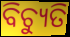
ବିଚ୍ୟୁତି